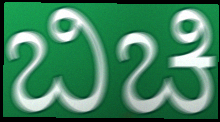
ಬಿಚಿ